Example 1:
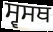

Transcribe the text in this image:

ਸ੍ਵਸਥ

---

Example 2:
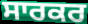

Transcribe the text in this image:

ਸਾਰਕਰ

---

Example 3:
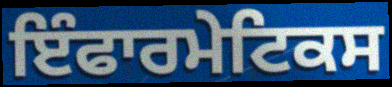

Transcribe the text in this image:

ਇੰਫਾਰਮੇਟਿਕਸ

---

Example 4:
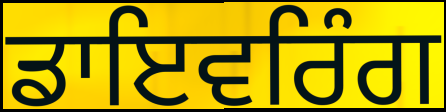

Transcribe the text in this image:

ਡਾਇਵਰਿੰਗ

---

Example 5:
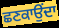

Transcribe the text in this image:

ਛਣਕਾਉਂਦਾ